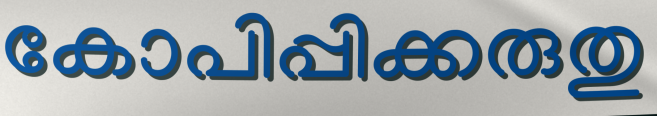
കോപിപ്പിക്കരുതു